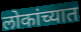
लोकांच्यात